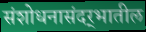
संशोधनासंदर्भातील